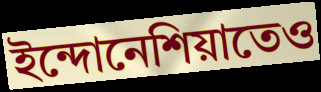
ইন্দোনেশিয়াতেও